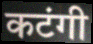
कटंगी